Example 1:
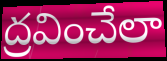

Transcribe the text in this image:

ద్రవించేలా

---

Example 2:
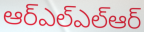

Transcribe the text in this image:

ఆర్ఎల్ఎల్ఆర్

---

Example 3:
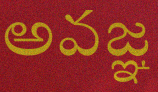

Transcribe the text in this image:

అవజ్ఞ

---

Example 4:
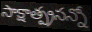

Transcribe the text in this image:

సాక్షాత్ప్రసన్నో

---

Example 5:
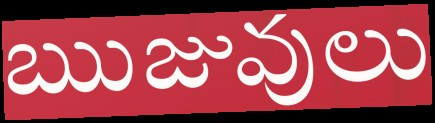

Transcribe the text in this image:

ఋజువులు